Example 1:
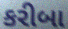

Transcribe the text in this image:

કરીબા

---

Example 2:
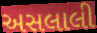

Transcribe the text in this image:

અસલાલી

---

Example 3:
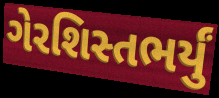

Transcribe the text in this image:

ગેરશિસ્તભર્યું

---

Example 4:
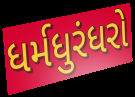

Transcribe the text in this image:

ધર્મધુરંધરો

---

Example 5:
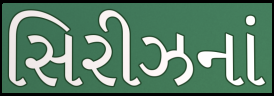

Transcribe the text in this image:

સિરીઝનાં